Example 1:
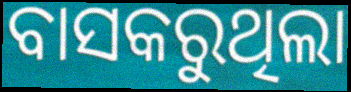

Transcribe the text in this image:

ବାସକରୁଥିଲା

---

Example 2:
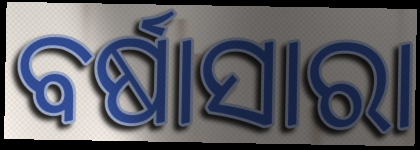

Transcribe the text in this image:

ବର୍ଷାସାରା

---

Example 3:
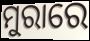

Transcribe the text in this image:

ମୁରାରେ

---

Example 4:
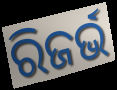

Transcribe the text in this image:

ରିଜର୍ଭ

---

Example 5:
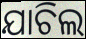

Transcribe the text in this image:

ଯାଚିଲ